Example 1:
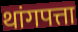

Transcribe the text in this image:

थांगपत्ता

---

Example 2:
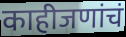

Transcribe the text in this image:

काहीजणांचं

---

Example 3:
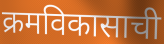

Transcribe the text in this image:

क्रमविकासाची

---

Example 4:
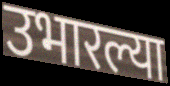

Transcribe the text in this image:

उभारल्या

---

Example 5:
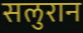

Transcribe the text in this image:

सलुरान